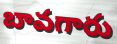
బావగారు